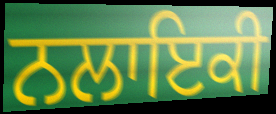
ਨਲਾਇਕੀ